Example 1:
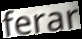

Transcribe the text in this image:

ferar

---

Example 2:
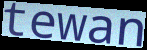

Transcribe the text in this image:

tewan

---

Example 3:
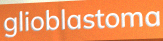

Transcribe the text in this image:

glioblastoma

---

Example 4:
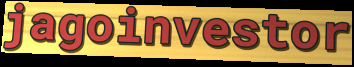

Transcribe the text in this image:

jagoinvestor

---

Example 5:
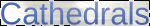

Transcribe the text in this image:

Cathedrals